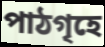
পাঠগৃহে